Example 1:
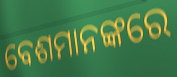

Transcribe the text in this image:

ବେଶମାନଙ୍କରେ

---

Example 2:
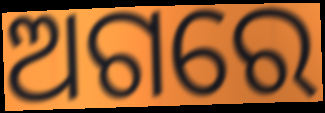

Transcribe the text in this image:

ଅଗରେ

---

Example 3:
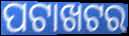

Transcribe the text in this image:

ପଟାଖଟର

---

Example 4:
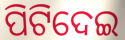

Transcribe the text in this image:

ପିଟିଦେଇ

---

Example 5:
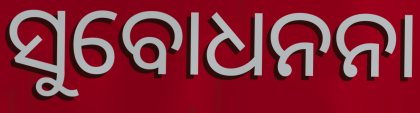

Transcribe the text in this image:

ସୁବୋଧନନା